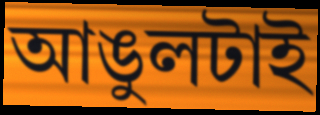
আঙুলটাই